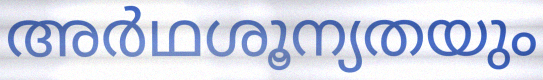
അർഥശൂന്യതയും